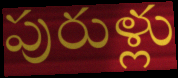
పురుళ్లు